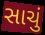
સાચું